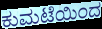
ಕುಮಟೆಯಿಂದ